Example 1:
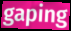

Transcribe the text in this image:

gaping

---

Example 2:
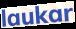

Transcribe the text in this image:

laukar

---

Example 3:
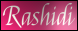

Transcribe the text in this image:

Rashidi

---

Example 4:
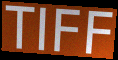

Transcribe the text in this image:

TIFF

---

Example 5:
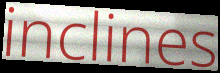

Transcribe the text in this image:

inclines